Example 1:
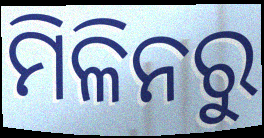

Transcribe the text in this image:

ମିଳିନରୁ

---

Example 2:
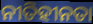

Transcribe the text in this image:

ନୀତିହୀନତା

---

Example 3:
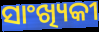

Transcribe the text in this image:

ସାଂଖ୍ୟିକୀ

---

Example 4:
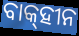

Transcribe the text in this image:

ବାକ୍‌ହୀନ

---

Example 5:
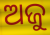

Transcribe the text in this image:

ଅଜୁ